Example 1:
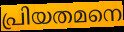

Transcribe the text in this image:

പ്രിയതമനെ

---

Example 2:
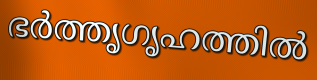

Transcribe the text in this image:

ഭർത്തൃഗൃഹത്തിൽ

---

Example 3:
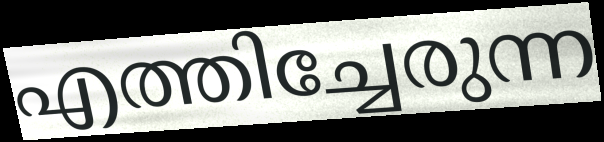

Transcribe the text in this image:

എത്തിച്ചേരുന്ന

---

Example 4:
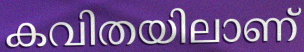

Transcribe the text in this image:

കവിതയിലാണ്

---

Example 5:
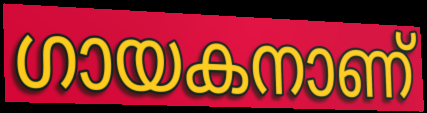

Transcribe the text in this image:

ഗായകനാണ്